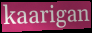
kaarigan